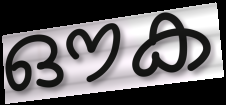
ഔക